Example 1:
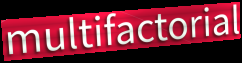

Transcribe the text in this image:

multifactorial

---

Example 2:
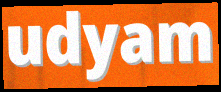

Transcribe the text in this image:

udyam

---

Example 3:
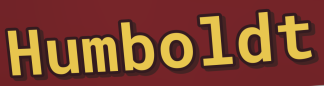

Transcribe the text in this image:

Humboldt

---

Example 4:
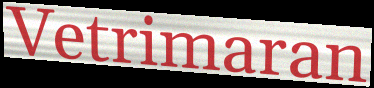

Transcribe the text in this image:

Vetrimaran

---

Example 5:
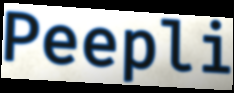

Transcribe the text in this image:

Peepli